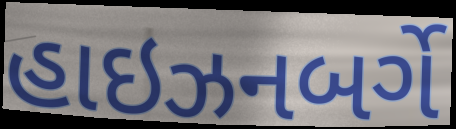
હાઇઝનબર્ગે